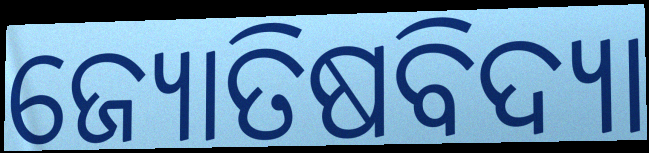
ଜ୍ୟୋତିଷବିଦ୍ୟା